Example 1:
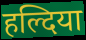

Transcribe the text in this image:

हल्दिया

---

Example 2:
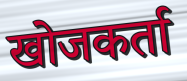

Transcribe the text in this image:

खोजकर्ता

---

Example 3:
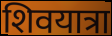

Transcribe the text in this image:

शिवयात्रा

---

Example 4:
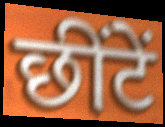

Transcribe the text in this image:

छींटें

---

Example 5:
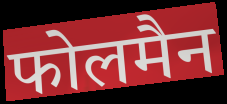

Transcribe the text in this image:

फोलमैन